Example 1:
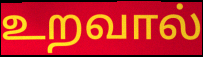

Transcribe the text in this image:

உறவால்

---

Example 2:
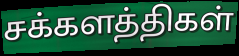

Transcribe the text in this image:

சக்களத்திகள்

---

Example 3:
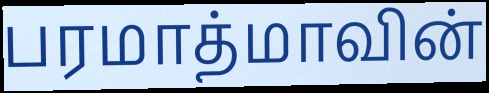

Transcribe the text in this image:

பரமாத்மாவின்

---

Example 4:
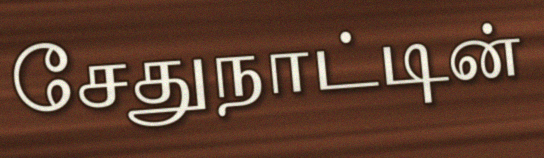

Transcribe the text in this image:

சேதுநாட்டின்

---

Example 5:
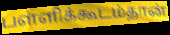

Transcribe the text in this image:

பள்ளிக்கூடம்தான்